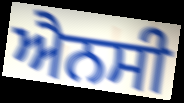
ਐਨਸੀ